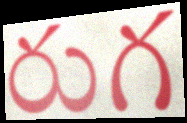
రుగ